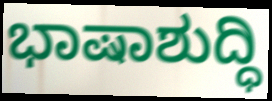
ಭಾಷಾಶುದ್ಧಿ